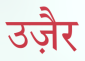
उज़ैर